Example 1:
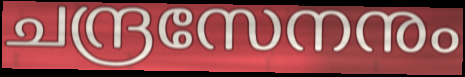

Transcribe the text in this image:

ചന്ദ്രസേനനും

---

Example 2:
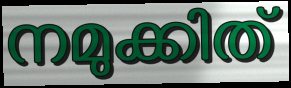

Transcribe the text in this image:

നമുക്കിത്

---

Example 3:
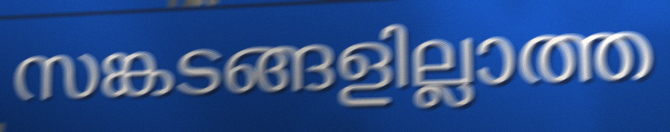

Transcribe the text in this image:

സങ്കടങ്ങളില്ലാത്ത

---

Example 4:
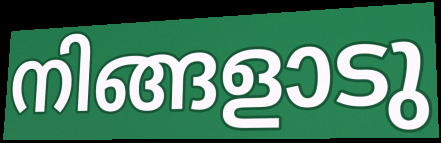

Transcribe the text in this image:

നിങ്ങളാടു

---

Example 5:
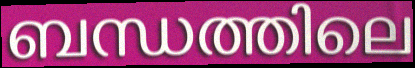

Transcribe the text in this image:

ബന്ധത്തിലെ